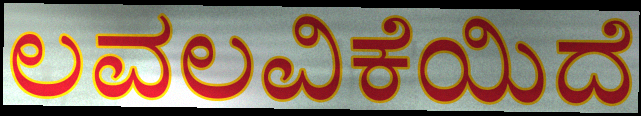
ಲವಲವಿಕೆಯಿದೆ